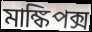
মাঙ্কিপক্স